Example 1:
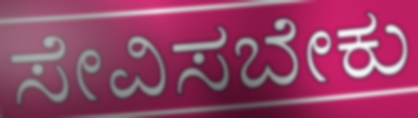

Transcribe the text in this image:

ಸೇವಿಸಬೇಕು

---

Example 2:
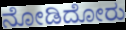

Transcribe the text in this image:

ನೋಡಿದೋರು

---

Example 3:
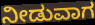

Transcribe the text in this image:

ನೀಡುವಾಗ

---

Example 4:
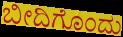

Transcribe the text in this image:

ಬೀದಿಗೊಂದು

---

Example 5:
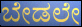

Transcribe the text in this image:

ಬೇಡಲೇ